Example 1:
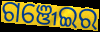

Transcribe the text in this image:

ଗଞ୍ଜେଇର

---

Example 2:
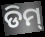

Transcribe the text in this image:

ଡିମ୍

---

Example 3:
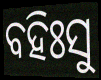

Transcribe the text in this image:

ବହିଃସୁ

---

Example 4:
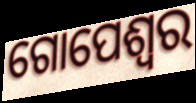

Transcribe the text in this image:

ଗୋପେଶ୍ଵର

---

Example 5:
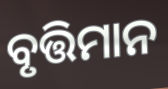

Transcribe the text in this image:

ବୃତ୍ତିମାନ